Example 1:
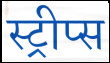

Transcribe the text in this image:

स्ट्रीप्स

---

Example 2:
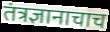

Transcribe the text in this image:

तंत्रज्ञानाचाच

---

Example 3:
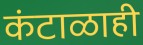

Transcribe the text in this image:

कंटाळाही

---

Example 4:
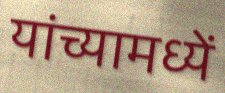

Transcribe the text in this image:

यांच्यामध्यें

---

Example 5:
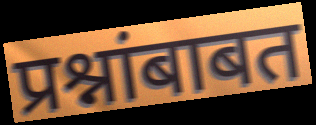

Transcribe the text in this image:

प्रश्नांबाबत